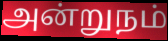
அன்றுநம்